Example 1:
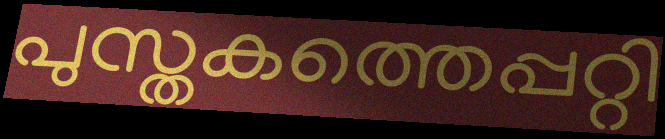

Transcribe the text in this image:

പുസ്തകത്തെപ്പറ്റി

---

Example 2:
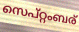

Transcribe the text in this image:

സെപ്റ്റംബര്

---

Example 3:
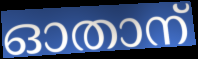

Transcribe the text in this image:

ഓതാന്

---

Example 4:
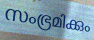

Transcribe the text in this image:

സംഭ്രമിക്കും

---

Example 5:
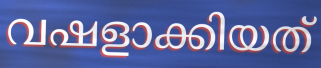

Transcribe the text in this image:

വഷളാക്കിയത്